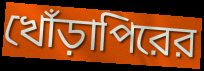
খোঁড়াপিরের